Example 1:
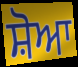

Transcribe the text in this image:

ਸ਼ੋਆ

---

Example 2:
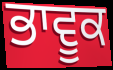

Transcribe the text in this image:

ਭਾਵੂਕ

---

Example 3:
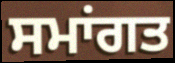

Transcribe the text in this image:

ਸਮਾਂਗਤ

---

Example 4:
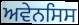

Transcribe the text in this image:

ਅਵੇਨਸਿਸ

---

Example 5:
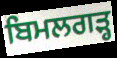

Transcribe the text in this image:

ਬਿਮਲਗੜ੍ਹ